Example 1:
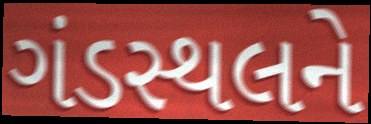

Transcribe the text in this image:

ગંડસ્થલને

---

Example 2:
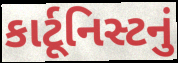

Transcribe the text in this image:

કાર્ટૂનિસ્ટનું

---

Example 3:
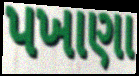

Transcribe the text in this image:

પખાણા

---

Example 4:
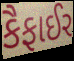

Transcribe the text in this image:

કૈફાઈર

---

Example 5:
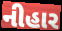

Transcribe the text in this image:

નીહાર